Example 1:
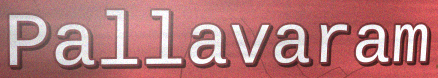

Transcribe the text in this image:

Pallavaram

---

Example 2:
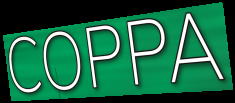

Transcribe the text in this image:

COPPA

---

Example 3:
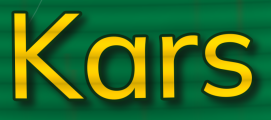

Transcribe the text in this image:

Kars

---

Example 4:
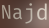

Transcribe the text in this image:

Najd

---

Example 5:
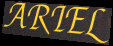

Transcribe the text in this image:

ARIEL